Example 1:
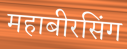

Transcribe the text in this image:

महाबीरसिंग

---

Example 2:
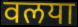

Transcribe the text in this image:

वलया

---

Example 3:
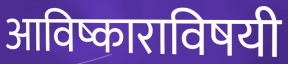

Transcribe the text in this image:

आविष्काराविषयी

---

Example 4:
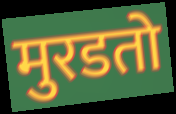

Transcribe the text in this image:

मुरडतो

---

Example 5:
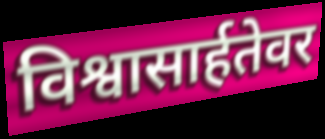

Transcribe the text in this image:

विश्वासार्हतेवर